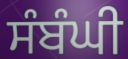
ਸੰਬੰਘੀ